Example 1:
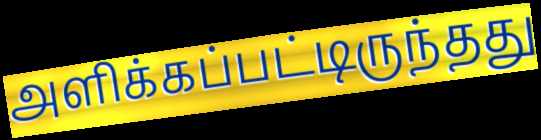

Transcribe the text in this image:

அளிக்கப்பட்டிருந்தது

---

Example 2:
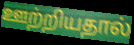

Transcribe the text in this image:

ஊற்றியதால்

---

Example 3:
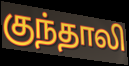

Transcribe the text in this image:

குந்தாலி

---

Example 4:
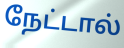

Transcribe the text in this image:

நேட்டால்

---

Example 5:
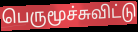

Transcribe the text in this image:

பெருமூச்சுவிட்டு